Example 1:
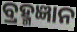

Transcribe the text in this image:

ବ୍ରହ୍ମଜ୍ଞାନ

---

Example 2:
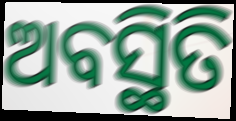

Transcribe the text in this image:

ଅବସ୍ଥିତି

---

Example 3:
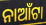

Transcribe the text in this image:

ନାଆଁଟା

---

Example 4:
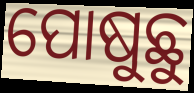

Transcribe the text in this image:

ପୋଷୁଛୁ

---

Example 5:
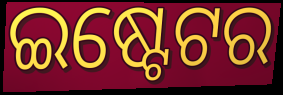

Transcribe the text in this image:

ଇଷ୍ଟେଟର